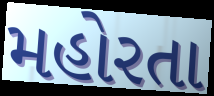
મહોરતા